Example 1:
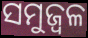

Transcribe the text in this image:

ସମୁଜ୍ୱଳ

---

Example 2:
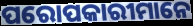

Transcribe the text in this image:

ପରୋପକାରୀମାନେ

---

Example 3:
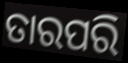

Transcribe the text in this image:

ତାରପରି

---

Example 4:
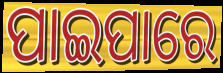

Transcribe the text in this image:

ପାଇପାରେ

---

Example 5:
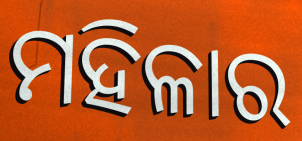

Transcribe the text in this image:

ମହିଳାର